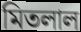
মিতলাল